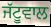
ਜੱਟੂਵਾਲ